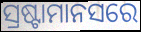
ସ୍ରଷ୍ଟାମାନସରେ